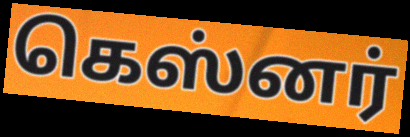
கெஸ்னர்